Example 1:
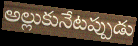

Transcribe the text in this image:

అల్లుకునేటప్పుడు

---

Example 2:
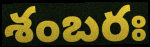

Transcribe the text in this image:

శంబరః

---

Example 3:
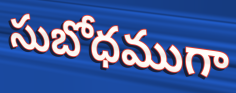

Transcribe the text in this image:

సుబోధముగా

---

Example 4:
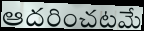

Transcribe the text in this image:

ఆదరించటమే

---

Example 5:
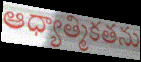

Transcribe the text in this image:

ఆధ్యాత్మికతను